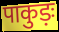
पाकुड़ः